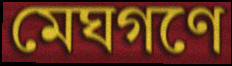
মেঘগণে